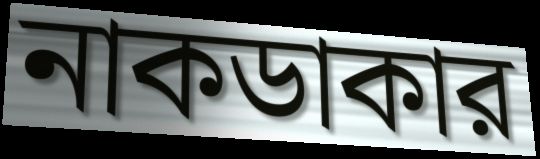
নাকডাকার